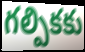
గల్పికకు